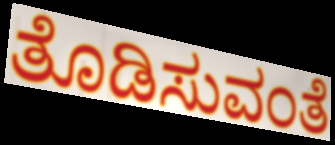
ತೊಡಿಸುವಂತೆ